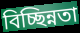
বিচ্ছিন্নতা